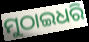
ମୁଠାଇଧରି